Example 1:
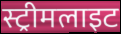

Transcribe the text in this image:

स्ट्रीमलाइट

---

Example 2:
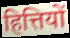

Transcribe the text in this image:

हित्तियों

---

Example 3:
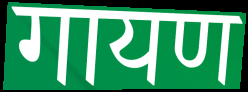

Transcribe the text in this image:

गायण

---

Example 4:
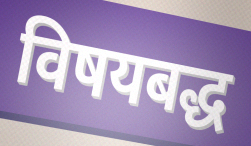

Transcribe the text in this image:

विषयबद्ध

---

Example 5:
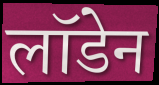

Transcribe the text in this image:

लॉडेन